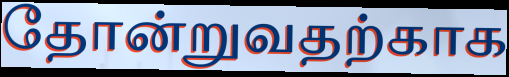
தோன்றுவதற்காக